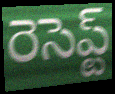
రెసెప్ట్